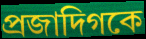
প্রজাদিগকে